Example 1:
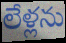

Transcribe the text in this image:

లేళ్లను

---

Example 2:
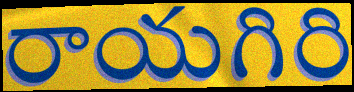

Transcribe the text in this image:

రాయగిరి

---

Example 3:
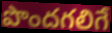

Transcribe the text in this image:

పొందగలిగే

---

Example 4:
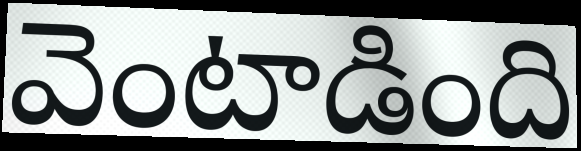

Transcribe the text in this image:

వెంటాడింది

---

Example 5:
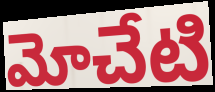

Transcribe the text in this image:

మోచేటి